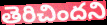
తెరిచిందని